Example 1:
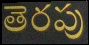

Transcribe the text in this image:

తెరపు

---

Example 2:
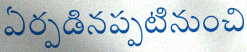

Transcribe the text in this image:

ఏర్పడినప్పటినుంచి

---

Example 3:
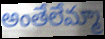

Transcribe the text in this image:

అంతేలేమ్మా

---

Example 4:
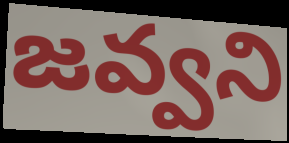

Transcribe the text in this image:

జవ్వని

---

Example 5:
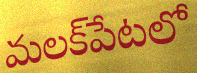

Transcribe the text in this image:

మలక్‌పేటలో